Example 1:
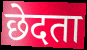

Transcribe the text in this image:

छेदता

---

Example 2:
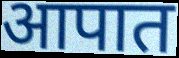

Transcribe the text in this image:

आपात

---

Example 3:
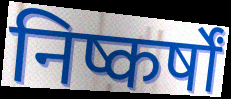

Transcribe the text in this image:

निष्कर्षों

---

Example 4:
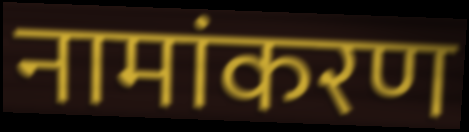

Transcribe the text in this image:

नामांकरण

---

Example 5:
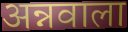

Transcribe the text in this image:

अन्नवाला